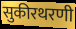
सुकीरथरणी